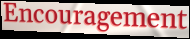
Encouragement